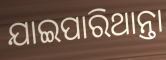
ଯାଇପାରିଥାନ୍ତା